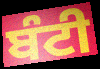
ਬੰਟੀ